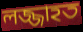
লজ্জাহত